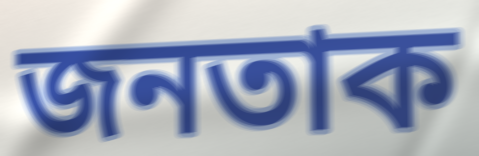
জনতাক